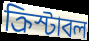
ক্রিস্টাবল